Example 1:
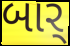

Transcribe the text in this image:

બાર્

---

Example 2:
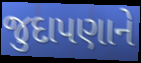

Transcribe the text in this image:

જુદાપણાને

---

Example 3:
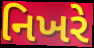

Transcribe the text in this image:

નિખરે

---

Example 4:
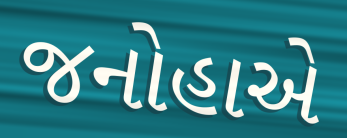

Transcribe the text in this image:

જનોહાએ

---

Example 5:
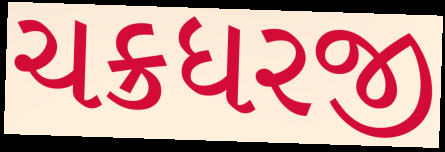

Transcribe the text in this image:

ચક્રધરજી